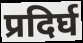
प्रदिर्घ